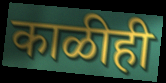
काळीही